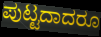
ಪುಟ್ಟದಾದರೂ